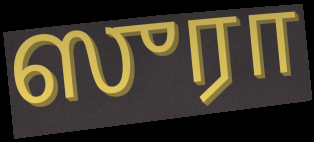
ஸுரா